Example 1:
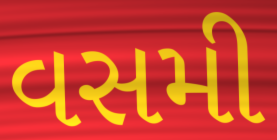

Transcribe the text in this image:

વસમી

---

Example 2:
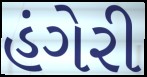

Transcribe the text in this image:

હંગેરી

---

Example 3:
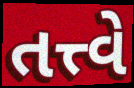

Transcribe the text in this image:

તત્ત્વે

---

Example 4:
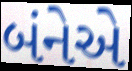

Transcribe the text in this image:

બંનેએ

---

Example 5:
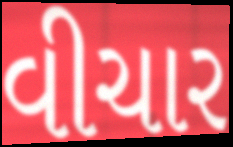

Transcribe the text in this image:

વીચાર